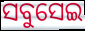
ସବୁସେଇ